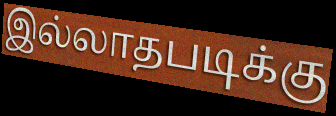
இல்லாதபடிக்கு